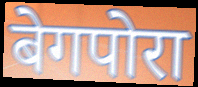
बेगपोरा